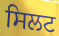
ਸਿਲਟ